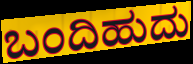
ಬಂದಿಹುದು